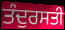
ਤੰਦੁਰਸਤੀ